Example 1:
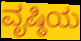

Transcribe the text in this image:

ವೃಷ್ಠಿಯ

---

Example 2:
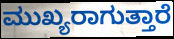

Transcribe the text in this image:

ಮುಖ್ಯರಾಗುತ್ತಾರೆ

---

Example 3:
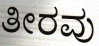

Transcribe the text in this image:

ತೀರವು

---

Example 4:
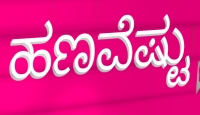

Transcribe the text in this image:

ಹಣವೆಷ್ಟು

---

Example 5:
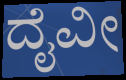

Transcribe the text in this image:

ದೈವೀ